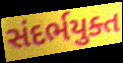
સંદર્ભયુક્ત